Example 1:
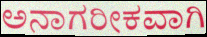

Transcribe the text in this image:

ಅನಾಗರೀಕವಾಗಿ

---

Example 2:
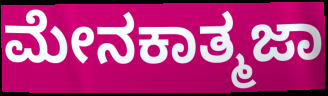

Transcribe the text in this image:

ಮೇನಕಾತ್ಮಜಾ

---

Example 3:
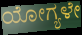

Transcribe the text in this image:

ಯೋಗ್ಯಳೇ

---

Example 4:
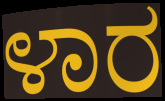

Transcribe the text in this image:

ಳಾರ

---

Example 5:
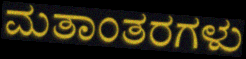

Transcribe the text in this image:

ಮತಾಂತರಗಳು